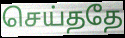
செய்ததே